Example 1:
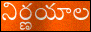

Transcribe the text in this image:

నిర్ణయాల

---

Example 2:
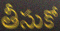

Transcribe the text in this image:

తీసుకో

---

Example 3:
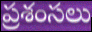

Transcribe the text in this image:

ప్రశంసలు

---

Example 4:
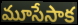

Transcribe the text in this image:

మూసేసాక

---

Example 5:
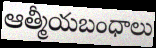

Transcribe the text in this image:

ఆత్మీయబంధాలు